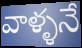
వాళ్ళనే